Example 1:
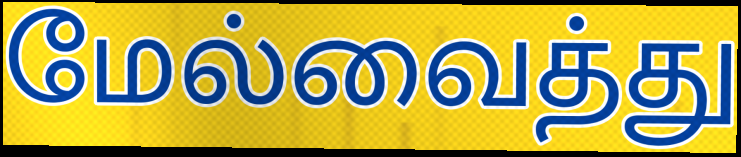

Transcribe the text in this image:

மேல்வைத்து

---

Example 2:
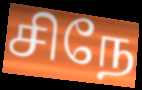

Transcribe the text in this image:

சிநே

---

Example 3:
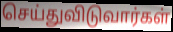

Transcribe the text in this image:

செய்துவிடுவார்கள்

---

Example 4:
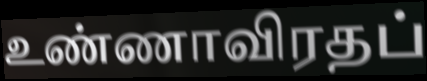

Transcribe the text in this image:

உண்ணாவிரதப்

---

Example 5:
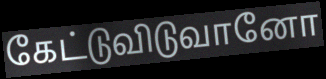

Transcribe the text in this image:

கேட்டுவிடுவானோ